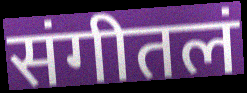
संगीतलं